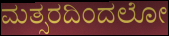
ಮತ್ಸರದಿಂದಲೋ